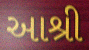
આશ્રી